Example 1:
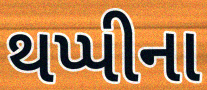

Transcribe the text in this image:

થપ્પીના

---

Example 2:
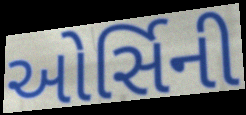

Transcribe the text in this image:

ઓર્સિની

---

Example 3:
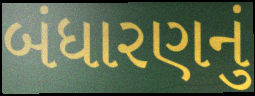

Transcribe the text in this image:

બંધારણનું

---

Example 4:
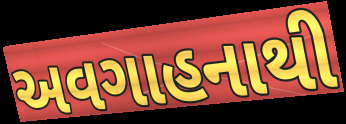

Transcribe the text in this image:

અવગાહનાથી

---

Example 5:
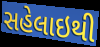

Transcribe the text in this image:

સહેલાઇથી